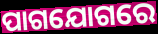
ପାଗଯୋଗରେ